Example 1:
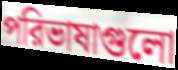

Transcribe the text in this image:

পরিভাষাগুলো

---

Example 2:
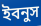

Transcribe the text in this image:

ইবনুস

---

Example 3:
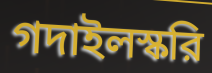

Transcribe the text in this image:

গদাইলস্করি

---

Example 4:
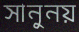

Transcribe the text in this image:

সানুনয়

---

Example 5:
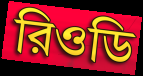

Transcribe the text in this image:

রিওডি